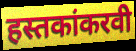
हस्तकांकरवी